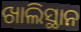
ଖାଲିସ୍ଥାନ